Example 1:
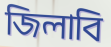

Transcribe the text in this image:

জিলাবি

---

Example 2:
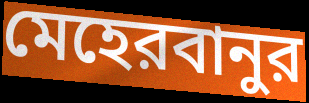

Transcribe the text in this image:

মেহেরবানুর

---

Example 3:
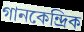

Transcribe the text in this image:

গানকেন্দ্রিক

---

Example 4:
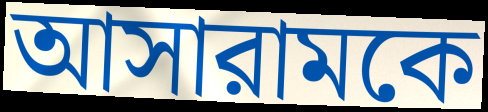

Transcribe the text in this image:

আসারামকে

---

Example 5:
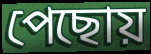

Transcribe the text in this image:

পেছোয়